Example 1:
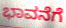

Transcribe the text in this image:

ಭಾವನೆಗೆ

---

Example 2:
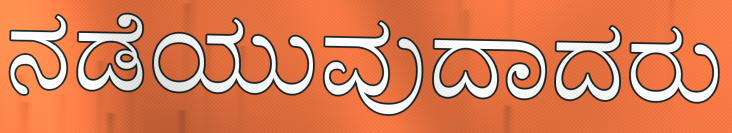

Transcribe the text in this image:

ನಡೆಯುವುದಾದರು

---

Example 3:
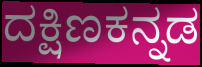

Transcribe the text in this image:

ದಕ್ಷಿಣಕನ್ನಡ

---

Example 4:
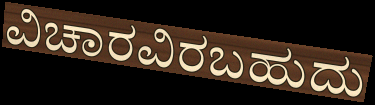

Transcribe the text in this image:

ವಿಚಾರವಿರಬಹುದು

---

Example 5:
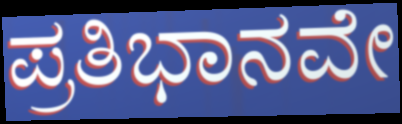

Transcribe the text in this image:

ಪ್ರತಿಭಾನವೇ